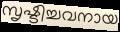
സൃഷ്ടിച്ചവനായ